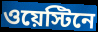
ওয়েস্টিনে